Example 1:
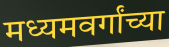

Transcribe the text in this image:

मध्यमवर्गांच्या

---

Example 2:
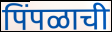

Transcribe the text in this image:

पिंपळाची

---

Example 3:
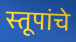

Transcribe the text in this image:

स्तूपांचे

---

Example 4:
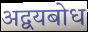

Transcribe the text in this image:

अद्वयबोध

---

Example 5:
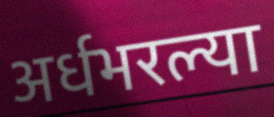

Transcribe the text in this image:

अर्धभरल्या